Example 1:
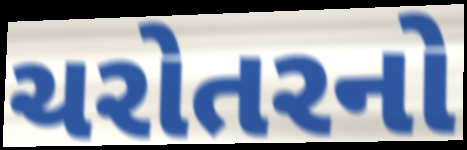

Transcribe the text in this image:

ચરોતરનો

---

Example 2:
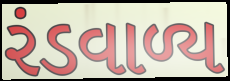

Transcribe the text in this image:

રંડવાળ્ય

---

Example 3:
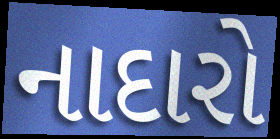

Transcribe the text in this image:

નાદારો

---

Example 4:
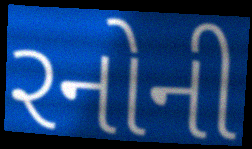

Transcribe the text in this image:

રનોની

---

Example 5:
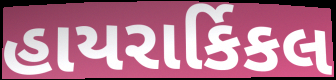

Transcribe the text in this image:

હાયરાર્કિકલ